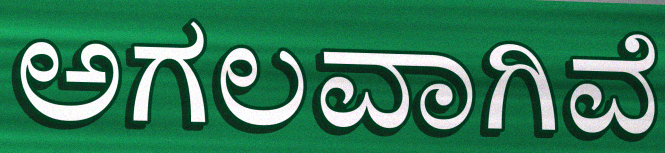
ಅಗಲವಾಗಿವೆ